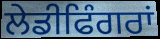
ਲੇਡੀਫਿੰਗਰਾਂ